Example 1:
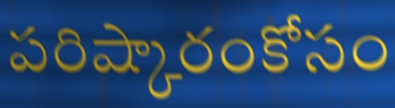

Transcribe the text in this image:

పరిష్కారంకోసం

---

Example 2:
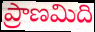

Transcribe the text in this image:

ప్రాణమిది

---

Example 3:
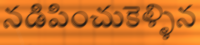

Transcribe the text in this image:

నడిపించుకెళ్ళిన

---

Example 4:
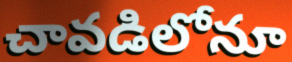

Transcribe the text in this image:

చావడిలోనూ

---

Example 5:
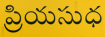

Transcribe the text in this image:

ప్రియసుధ